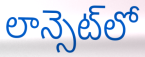
లాన్సెట్‌లో